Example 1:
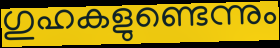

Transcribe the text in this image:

ഗുഹകളുണ്ടെന്നും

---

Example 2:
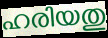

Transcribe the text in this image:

ഹരിയതു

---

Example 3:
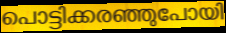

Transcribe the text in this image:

പൊട്ടിക്കരഞ്ഞുപോയി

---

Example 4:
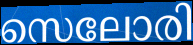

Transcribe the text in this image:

സെലോരി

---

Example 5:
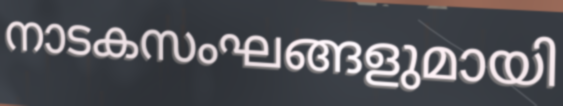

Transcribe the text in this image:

നാടകസംഘങ്ങളുമായി